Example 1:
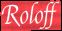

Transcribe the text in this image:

Roloff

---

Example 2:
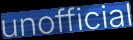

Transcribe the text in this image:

unofficial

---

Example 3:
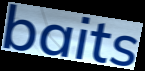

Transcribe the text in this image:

baits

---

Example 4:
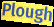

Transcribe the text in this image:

Plough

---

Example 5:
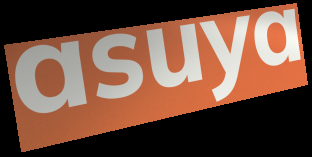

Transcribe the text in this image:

asuya